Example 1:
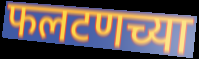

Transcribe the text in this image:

फलटणच्या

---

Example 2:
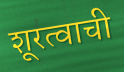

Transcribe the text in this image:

शूरत्वाची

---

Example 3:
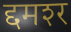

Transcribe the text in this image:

द्दमश्र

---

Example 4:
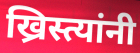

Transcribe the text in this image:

ख्रिस्त्यांनी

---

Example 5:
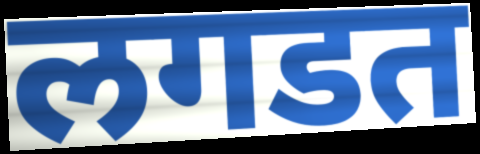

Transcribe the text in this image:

लगडत